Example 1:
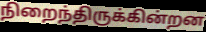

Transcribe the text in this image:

நிறைந்திருக்கின்றன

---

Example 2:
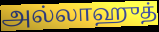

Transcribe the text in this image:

அல்லாஹுத்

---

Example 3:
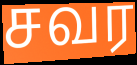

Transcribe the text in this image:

சவர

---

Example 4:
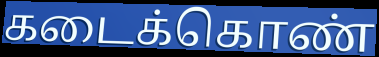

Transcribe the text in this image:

கடைக்கொண்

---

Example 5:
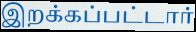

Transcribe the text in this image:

இறக்கப்பட்டார்